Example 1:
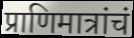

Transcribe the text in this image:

प्राणिमात्रांचं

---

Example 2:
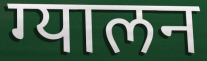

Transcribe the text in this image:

ग्यालन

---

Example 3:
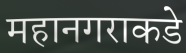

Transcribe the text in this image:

महानगराकडे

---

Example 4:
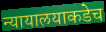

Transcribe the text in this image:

न्यायालयाकडेच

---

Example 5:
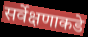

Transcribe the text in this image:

सर्वेक्षणाकडे